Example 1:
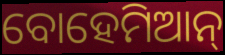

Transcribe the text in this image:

ବୋହେମିଆନ୍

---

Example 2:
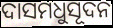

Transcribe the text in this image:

ଦାସମଧୁସୂଦନ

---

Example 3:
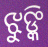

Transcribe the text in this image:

ଝୁଙ୍କି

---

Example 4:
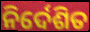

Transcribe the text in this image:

ନିର୍ଦେଶିତ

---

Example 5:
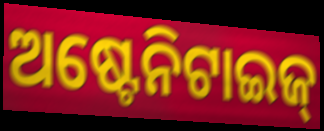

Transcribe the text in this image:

ଅଷ୍ଟେନିଟାଇଜ୍